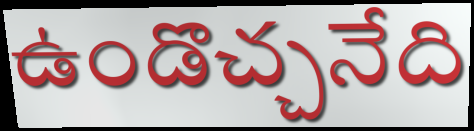
ఉండొచ్చనేది